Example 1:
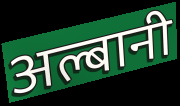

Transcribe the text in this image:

अल्बानी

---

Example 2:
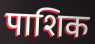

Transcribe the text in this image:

पाशिक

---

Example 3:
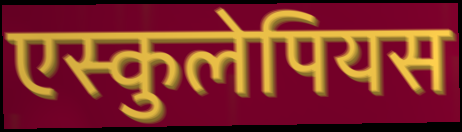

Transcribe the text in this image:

एस्कुलेपियस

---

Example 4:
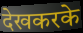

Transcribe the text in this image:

देखकरके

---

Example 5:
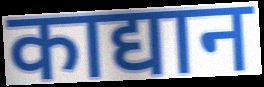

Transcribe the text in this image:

काद्यान